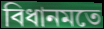
বিধানমতে